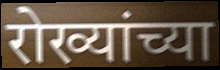
रोख्यांच्या